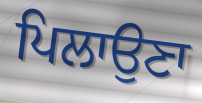
ਪਿਲਾਉਣਾ